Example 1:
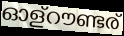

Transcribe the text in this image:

ഓള്റൗണ്ടര്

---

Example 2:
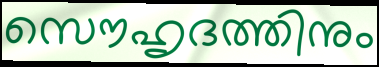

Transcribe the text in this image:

സൌഹൃദത്തിനും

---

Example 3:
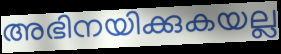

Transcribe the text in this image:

അഭിനയിക്കുകയല്ല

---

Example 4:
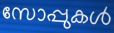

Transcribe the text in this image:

സോപ്പുകൾ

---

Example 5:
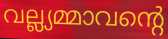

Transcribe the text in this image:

വല്ല്യമ്മാവന്റെ